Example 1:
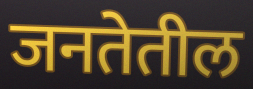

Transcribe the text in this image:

जनतेतील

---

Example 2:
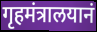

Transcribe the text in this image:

गृहमंत्रालयानं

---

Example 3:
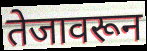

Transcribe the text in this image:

तेजावरून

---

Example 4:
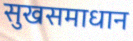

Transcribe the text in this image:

सुखसमाधान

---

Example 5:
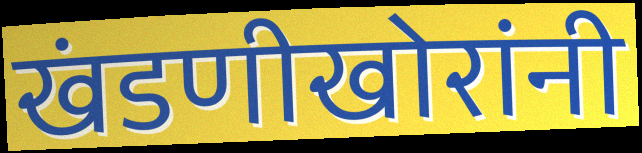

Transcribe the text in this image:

खंडणीखोरांनी